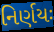
નિર્ણયઃ